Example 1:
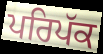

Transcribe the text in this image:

ਪਰਿਪੱਕ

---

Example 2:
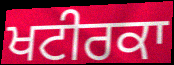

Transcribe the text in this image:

ਖਟੀਰਕਾ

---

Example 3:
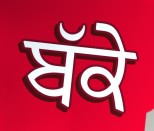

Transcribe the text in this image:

ਬੱਕੇ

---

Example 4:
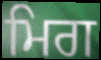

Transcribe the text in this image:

ਮਿਗ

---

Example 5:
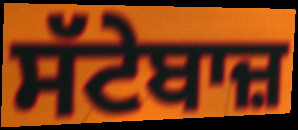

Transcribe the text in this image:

ਸੱਟੇਬਾਜ਼